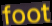
foot